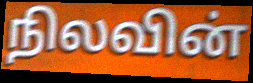
நிலவின்